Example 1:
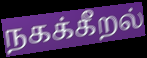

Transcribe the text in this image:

நகக்கீறல்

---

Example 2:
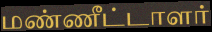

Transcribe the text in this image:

மண்ணீட்டாளர்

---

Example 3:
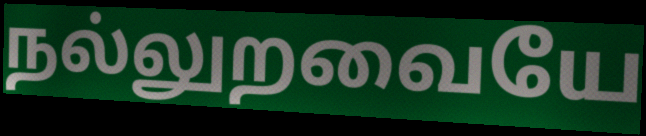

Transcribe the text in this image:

நல்லுறவையே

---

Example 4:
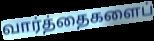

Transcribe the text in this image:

வார்த்தைகளைப்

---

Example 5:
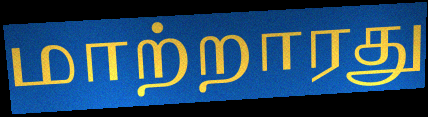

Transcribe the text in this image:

மாற்றாரது